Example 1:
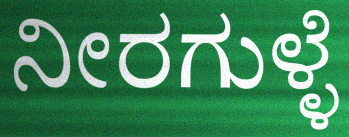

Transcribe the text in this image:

ನೀರಗುಳ್ಳೆ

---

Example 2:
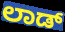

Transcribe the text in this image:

ಲಾಡ್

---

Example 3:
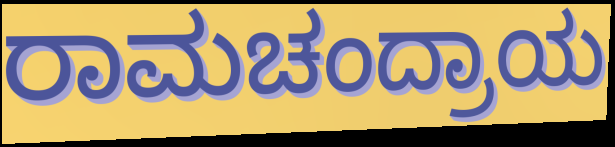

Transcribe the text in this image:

ರಾಮಚಂದ್ರಾಯ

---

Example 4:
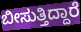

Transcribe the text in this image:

ಬೀಸುತ್ತಿದ್ದಾರೆ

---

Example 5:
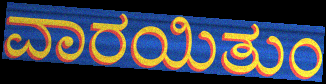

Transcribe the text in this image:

ವಾರಯಿತುಂ